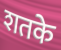
शतके